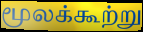
மூலக்கூற்று